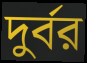
দুর্বর